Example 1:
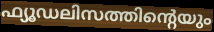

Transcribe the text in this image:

ഫ്യൂഡലിസത്തിന്റെയും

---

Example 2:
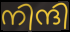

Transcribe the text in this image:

നിന്ദി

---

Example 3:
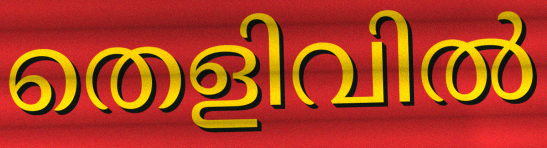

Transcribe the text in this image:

തെളിവിൽ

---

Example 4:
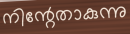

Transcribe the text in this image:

നിന്റേതാകുന്നു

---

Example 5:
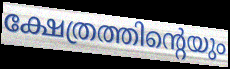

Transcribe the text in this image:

ക്ഷേത്രത്തിന്റെയും